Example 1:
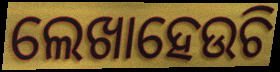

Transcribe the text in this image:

ଲେଖାହେଉଚି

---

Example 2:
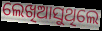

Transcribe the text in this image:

ଲେଖିଆସୁଥିଲେ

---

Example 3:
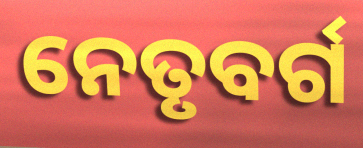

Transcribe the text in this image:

ନେତୃବର୍ଗ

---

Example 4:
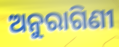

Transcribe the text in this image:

ଅନୁରାଗିଣୀ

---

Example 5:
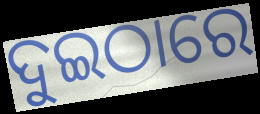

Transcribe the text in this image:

ଦୁଇଠାରେ